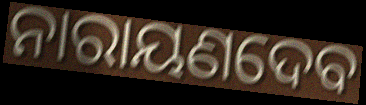
ନାରାୟଣଦେବ